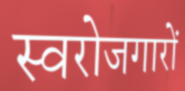
स्वरोजगारों